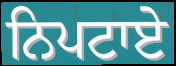
ਨਿਪਟਾਏ